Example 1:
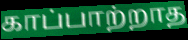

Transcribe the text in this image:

காப்பாற்றாத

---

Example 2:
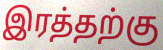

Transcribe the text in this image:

இரத்தற்கு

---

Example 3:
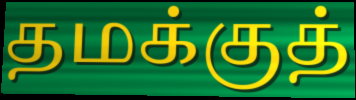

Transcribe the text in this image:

தமக்குத்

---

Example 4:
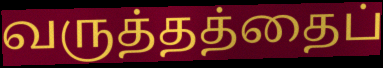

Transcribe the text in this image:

வருத்தத்தைப்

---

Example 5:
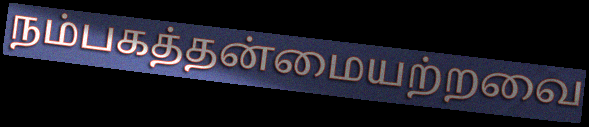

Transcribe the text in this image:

நம்பகத்தன்மையற்றவை